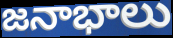
జనాభాలు